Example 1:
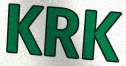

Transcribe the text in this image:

KRK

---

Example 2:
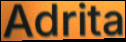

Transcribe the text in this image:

Adrita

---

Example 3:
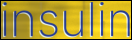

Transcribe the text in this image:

insulin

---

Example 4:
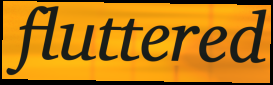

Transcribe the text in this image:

fluttered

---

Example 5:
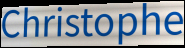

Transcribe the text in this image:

Christophe